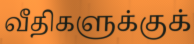
வீதிகளுக்குக்